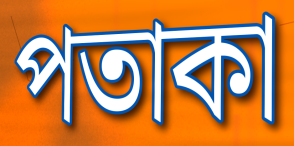
পতাকা